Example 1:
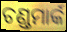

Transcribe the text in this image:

ଚଣ୍ଡମାର୍କ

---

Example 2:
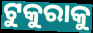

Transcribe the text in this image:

ଟୁକୁରାକୁ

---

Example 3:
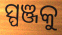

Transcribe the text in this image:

ସ୍ପଞ୍ଜକୁ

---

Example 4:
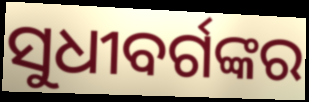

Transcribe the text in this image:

ସୁଧୀବର୍ଗଙ୍କର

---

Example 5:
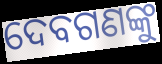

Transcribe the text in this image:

ଦେବଗଣଙ୍କୁ